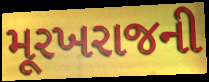
મૂરખરાજની